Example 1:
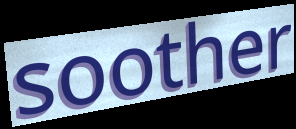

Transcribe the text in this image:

soother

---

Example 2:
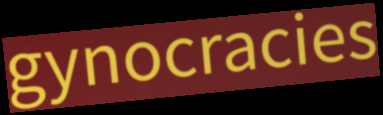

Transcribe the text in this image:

gynocracies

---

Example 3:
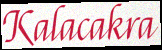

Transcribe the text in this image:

Kalacakra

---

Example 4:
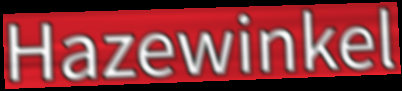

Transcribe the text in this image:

Hazewinkel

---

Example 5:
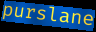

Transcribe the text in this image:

purslane